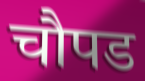
चौपड